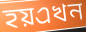
হয়এখন